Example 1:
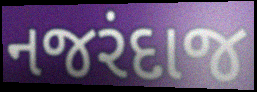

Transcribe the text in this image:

નજરંદાજ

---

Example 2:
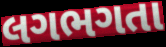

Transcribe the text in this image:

લગભગતા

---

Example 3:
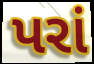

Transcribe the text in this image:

પરાં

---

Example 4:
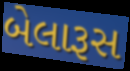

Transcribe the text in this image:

બેલારૂસ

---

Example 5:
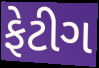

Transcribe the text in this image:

ફેટીગ